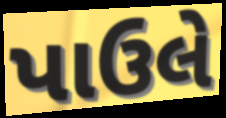
પાઉલે